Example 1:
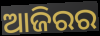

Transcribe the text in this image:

ଆଜିରର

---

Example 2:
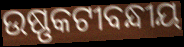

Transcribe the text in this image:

ଉଷ୍ଣକଟୀବନ୍ଧୀୟ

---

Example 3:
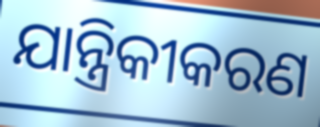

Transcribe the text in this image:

ଯାନ୍ତ୍ରିକୀକରଣ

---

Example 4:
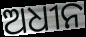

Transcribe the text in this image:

ଅଧୀନ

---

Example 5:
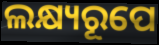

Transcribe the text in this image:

ଲକ୍ଷ୍ୟରୂପେ